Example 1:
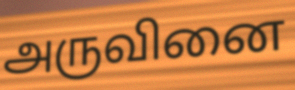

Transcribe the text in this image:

அருவினை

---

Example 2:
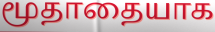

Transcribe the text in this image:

மூதாதையாக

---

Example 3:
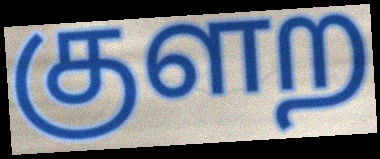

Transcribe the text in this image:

குளற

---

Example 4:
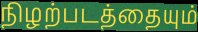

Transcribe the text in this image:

நிழற்படத்தையும்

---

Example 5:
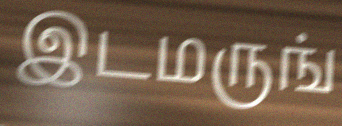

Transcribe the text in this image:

இடமருங்